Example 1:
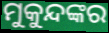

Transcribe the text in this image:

ମୁକୁନ୍ଦଙ୍କର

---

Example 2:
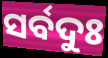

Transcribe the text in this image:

ସର୍ବଦୁଃ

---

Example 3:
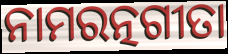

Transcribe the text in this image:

ନାମରତ୍ନଗୀତା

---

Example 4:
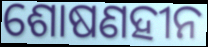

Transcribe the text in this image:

ଶୋଷଣହୀନ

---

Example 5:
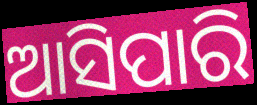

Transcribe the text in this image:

ଆସିପାରି